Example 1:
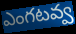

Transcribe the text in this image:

ఎంగటవ్వ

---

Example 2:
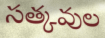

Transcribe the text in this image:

సత్కవుల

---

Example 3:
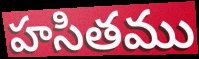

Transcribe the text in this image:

హసితము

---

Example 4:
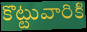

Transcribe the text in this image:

కొట్టువారికి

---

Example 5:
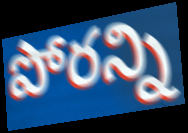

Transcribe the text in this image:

పోరన్ని